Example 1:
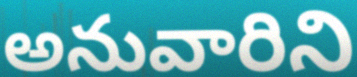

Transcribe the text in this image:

అనువారిని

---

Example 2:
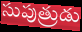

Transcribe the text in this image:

సుపుత్రుడు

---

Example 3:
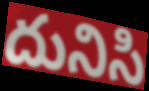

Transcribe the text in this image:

దునిసి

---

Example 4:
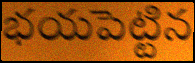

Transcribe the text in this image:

భయపెట్టిన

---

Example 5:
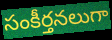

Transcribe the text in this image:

సంకీర్తనలుగా